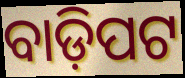
ବାଡ଼ିପଟ